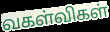
வகள்விகள்